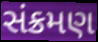
સંક્રમણ